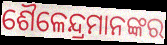
ଶୈଳେନ୍ଦ୍ରମାନଙ୍କର